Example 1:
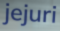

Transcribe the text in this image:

jejuri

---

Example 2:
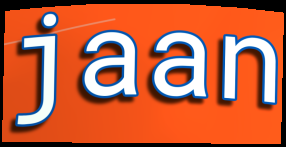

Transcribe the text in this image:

jaan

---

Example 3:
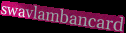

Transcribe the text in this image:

swavlambancard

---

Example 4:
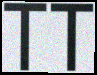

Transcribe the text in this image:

TT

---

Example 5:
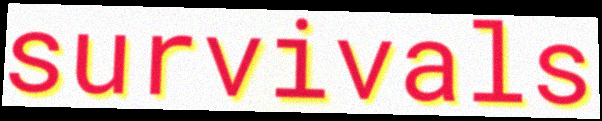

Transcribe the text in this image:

survivals